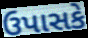
ઉપાસકે